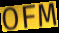
OFM